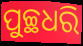
ପୁଚ୍ଛଧରି